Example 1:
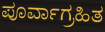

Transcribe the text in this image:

ಪೂರ್ವಾಗ್ರಹಿತ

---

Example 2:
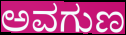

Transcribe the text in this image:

ಅವಗುಣ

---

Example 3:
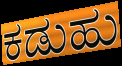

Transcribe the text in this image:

ಕಡುಹು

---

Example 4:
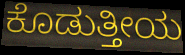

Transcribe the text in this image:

ಕೊಡುತ್ತೀಯ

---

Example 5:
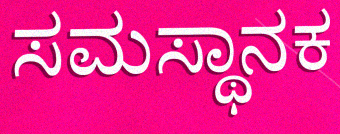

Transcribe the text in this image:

ಸಮಸ್ಥಾನಕ